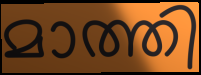
മാത്തി